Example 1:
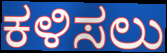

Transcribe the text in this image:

ಕಳಿಸಲು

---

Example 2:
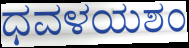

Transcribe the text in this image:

ಧವಳಯಶಂ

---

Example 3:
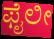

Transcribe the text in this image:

ಫೈಲೀ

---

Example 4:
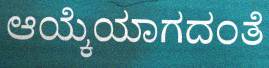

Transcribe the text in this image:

ಆಯ್ಕೆಯಾಗದಂತೆ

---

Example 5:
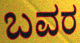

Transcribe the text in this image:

ಬವರ